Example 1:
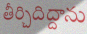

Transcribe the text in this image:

తీర్చిదిద్దాను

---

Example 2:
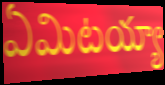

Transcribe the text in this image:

ఏమిటయ్యా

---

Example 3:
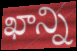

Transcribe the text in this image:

ఖాన్ని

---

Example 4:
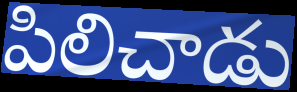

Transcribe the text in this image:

పిలిచాడు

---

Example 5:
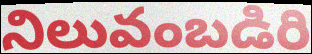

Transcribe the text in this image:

నిలువంబడిరి